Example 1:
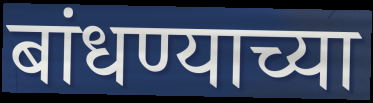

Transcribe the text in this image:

बांधण्याच्या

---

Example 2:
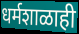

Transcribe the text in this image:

धर्मशाळाही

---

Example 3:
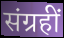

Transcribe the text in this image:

संग्रहीं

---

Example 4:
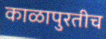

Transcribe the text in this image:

काळापुरतीच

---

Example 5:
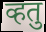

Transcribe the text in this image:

व्हतु